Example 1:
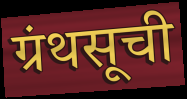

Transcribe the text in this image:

ग्रंथसूची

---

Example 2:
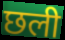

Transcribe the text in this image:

छली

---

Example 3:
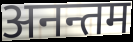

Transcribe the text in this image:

अनन्तम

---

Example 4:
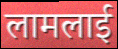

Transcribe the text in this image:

लामलाई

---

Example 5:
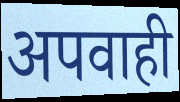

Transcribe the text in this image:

अपवाही